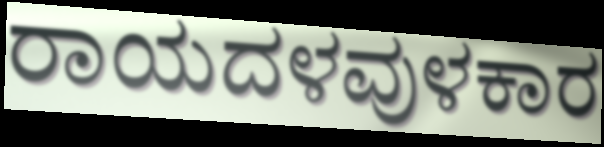
ರಾಯದಳವುಳಕಾರ